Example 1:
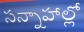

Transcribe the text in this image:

సన్నాహాల్లో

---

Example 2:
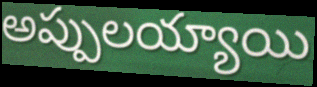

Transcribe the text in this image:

అప్పులయ్యాయి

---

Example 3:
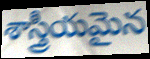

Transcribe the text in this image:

శాస్త్రీయమైన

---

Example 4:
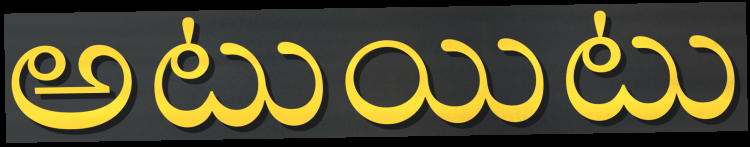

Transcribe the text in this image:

అటుయిటు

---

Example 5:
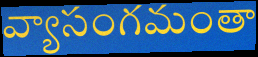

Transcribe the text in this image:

వ్యాసంగమంతా